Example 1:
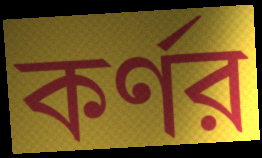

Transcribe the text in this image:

কর্ণর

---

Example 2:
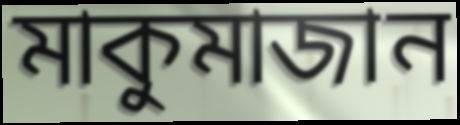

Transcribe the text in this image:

মাকুমাজান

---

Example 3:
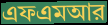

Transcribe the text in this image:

এফএমআর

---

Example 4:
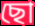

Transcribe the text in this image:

ছো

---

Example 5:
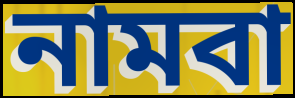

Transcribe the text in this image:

নামবা